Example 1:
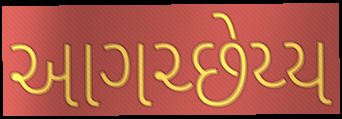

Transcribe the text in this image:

આગચ્છેય્ય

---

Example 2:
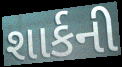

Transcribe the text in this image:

શાર્કની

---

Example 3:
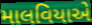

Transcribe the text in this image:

માલવિયાએ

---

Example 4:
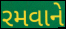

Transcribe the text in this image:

રમવાને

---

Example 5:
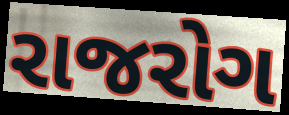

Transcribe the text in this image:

રાજરોગ